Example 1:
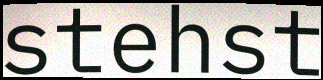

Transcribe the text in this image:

stehst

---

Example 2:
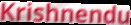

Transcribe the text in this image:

Krishnendu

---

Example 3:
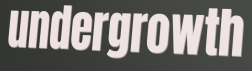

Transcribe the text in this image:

undergrowth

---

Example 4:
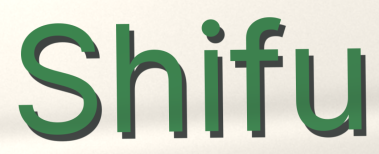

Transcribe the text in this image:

Shifu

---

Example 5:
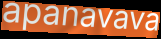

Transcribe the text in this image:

apanavava